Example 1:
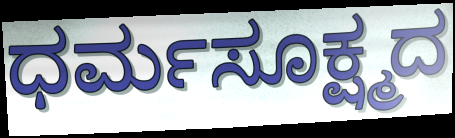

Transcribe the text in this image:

ಧರ್ಮಸೂಕ್ಷ್ಮದ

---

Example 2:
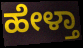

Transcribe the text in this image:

ಹೇಳ್ತಾ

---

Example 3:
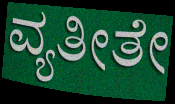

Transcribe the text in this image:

ವ್ಯತೀತೇ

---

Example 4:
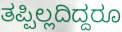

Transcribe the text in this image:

ತಪ್ಪಿಲ್ಲದಿದ್ದರೂ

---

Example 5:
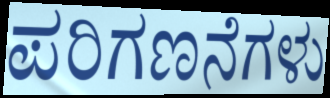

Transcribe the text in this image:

ಪರಿಗಣನೆಗಳು